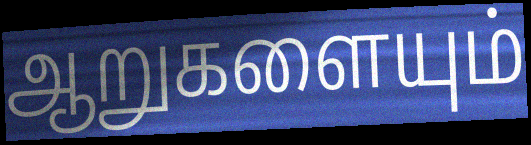
ஆறுகளையும்